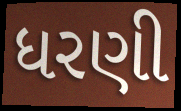
ધરણી